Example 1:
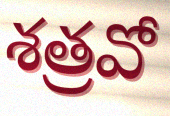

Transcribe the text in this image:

శత్రవో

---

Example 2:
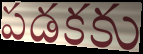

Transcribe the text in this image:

పడకకు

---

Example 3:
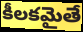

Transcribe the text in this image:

కీలకమైతే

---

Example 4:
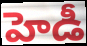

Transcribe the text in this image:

హెడీ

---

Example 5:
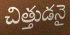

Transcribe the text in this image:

చిత్తుడనై